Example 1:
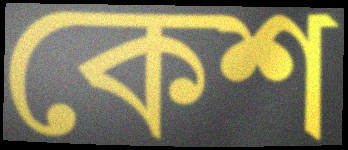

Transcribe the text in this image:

কেশ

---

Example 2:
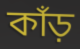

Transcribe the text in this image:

কাঁড়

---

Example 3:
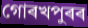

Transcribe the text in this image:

গোৰখপুৰৰ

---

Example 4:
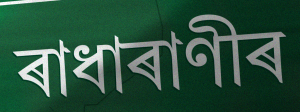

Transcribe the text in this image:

ৰাধাৰাণীৰ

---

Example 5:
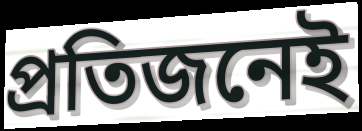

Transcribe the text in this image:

প্ৰতিজনেই